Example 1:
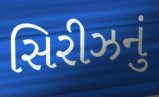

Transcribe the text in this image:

સિરીઝનું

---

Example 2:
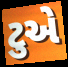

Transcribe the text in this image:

ટુએ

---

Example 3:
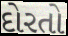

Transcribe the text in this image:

દોરતો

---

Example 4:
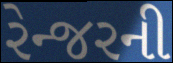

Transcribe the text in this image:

રેન્જરની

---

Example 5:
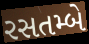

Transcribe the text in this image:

રસતમ્બે